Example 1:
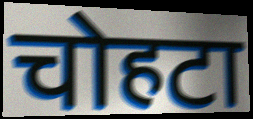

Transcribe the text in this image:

चोहटा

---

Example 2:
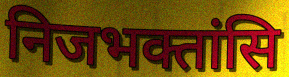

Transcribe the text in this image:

निजभक्तांसि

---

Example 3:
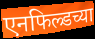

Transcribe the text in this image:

एनफिल्डच्या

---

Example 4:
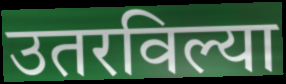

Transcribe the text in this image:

उतरविल्या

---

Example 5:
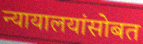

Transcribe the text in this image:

न्यायालयांसोबत